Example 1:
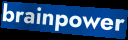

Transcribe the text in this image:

brainpower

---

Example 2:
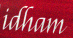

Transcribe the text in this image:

idham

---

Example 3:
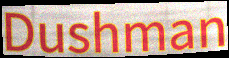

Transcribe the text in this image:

Dushman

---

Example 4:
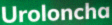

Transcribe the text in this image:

Uroloncha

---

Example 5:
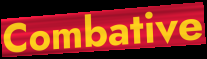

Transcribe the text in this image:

Combative